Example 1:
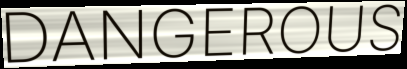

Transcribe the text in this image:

DANGEROUS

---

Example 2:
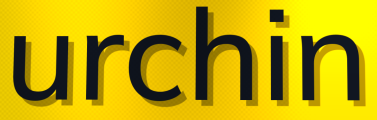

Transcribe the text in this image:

urchin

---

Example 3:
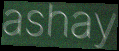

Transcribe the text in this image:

ashay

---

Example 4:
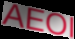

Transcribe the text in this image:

AEOI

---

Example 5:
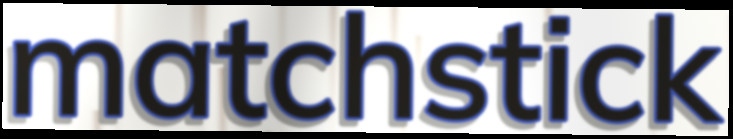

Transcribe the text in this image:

matchstick